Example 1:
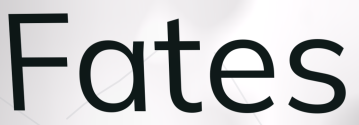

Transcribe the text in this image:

Fates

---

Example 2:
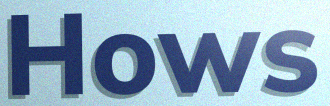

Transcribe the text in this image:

Hows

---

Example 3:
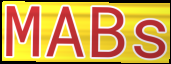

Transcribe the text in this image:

MABs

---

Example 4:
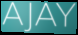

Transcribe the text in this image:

AJAY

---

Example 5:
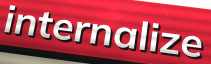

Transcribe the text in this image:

internalize